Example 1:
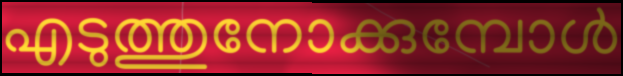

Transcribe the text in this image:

എടുത്തുനോക്കുമ്പോൾ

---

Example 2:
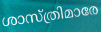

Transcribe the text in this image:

ശാസ്ത്രിമാരേ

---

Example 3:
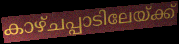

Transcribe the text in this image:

കാഴ്ചപ്പാടിലേയ്ക്ക്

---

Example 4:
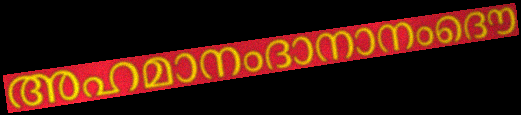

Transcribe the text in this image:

അഹമാനംദാനാനംദൌ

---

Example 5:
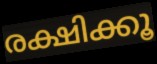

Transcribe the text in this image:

രക്ഷിക്കൂ